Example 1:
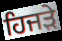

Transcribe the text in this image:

ਹਿਜੜੇ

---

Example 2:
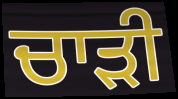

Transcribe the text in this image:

ਚਾਡ਼ੀ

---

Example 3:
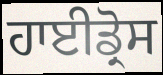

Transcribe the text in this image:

ਹਾਈਡ੍ਰੋਸ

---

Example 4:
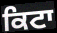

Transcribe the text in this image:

ਕਿਟਾ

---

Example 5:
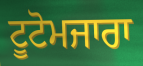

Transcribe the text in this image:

ਟੂਟੋਮਜਾਰਾ